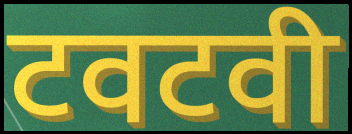
टवटवी